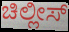
ಚಿಲ್ಲೀಸ್